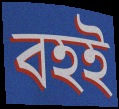
বহই